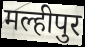
मल्हीपुर